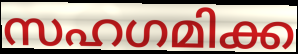
സഹഗമിക്ക